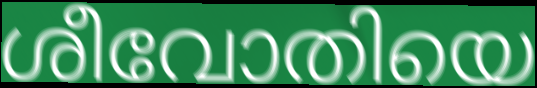
ശീവോതിയെ